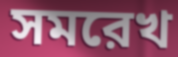
সমরেখ